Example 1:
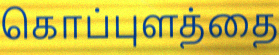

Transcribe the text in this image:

கொப்புளத்தை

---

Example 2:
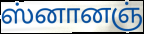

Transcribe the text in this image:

ஸ்னானஞ்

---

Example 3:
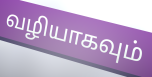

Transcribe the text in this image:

வழியாகவும்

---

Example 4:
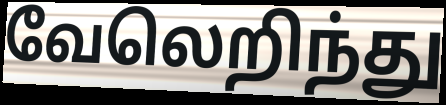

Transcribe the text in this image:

வேலெறிந்து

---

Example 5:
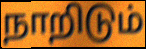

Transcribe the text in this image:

நாறிடும்